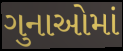
ગુનાઓમાં